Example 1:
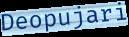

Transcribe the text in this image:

Deopujari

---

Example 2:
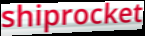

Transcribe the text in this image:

shiprocket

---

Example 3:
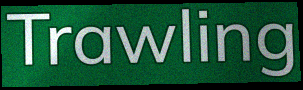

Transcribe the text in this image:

Trawling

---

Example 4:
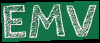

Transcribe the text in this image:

EMV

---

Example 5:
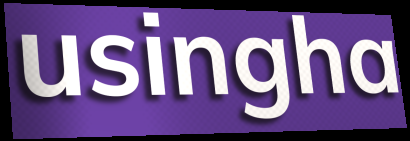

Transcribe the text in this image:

usingha